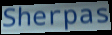
Sherpas